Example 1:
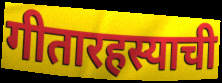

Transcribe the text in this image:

गीतारहस्याची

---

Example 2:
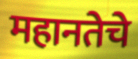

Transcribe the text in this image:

महानतेचे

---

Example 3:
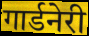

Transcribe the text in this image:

गार्डनेरी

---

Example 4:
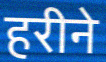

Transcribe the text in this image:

हरीने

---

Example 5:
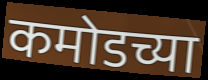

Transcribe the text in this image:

कमोडच्या